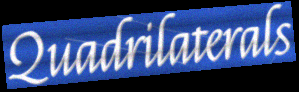
Quadrilaterals